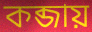
কব্জায়